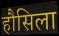
हौसिला